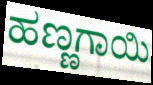
ಹಣ್ಣಗಾಯಿ